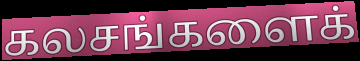
கலசங்களைக்